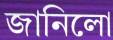
জানিলো